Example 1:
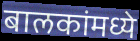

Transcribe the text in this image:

बालकांमध्ये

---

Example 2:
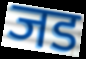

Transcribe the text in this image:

जड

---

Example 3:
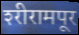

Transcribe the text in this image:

श्रीरामपूर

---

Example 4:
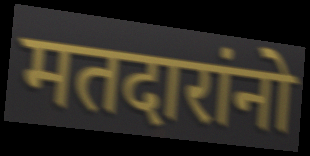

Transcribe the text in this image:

मतदारांनो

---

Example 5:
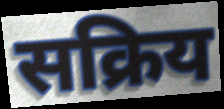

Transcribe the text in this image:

सक्रिय